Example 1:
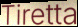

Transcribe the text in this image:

Tiretta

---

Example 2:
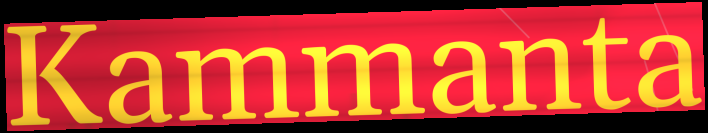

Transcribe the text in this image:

Kammanta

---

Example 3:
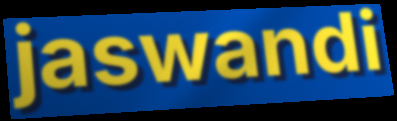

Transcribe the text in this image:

jaswandi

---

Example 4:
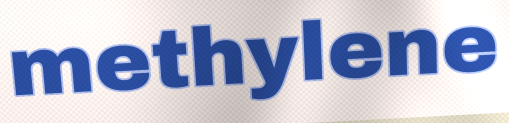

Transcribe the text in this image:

methylene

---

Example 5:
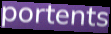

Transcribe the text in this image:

portents